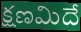
క్షణమిదే